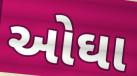
ઓઘા